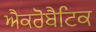
ਐਕਰੋਬੈਟਿਕ